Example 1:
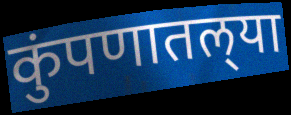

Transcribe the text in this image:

कुंपणातल्या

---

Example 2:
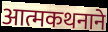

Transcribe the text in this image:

आत्मकथनाने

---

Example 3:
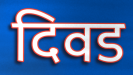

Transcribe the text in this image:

दिवड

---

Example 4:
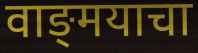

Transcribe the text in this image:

वाङ्मयाचा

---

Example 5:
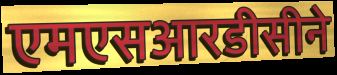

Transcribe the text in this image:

एमएसआरडीसीने